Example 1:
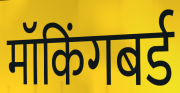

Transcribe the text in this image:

मॉकिंगबर्ड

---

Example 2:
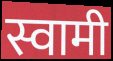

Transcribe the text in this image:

स्वामी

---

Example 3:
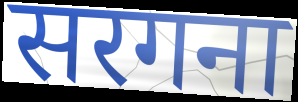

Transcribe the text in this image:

सरगना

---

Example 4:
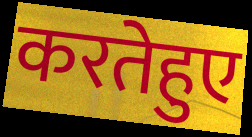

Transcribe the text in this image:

करतेहुए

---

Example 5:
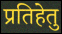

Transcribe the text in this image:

प्रतिहेतु